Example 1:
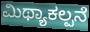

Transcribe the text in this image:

ಮಿಥ್ಯಾಕಲ್ಪನೆ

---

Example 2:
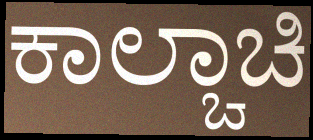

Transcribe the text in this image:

ಕಾಲ್ಚಾಚಿ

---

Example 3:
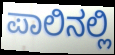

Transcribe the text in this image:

ಪಾಲಿನಲ್ಲಿ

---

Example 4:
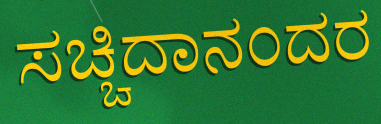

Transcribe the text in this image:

ಸಚ್ಚಿದಾನಂದರ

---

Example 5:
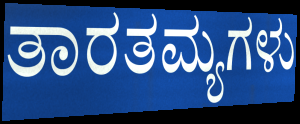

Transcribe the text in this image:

ತಾರತಮ್ಯಗಳು